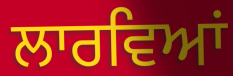
ਲਾਰਵਿਆਂ